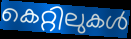
കെറ്റിലുകൾ